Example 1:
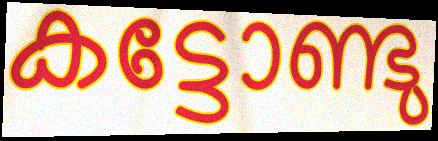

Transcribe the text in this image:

കട്ടോണ്ടു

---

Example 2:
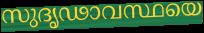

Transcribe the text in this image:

സുദൃഢാവസ്ഥയെ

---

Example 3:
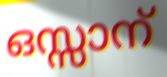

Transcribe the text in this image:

ഒസ്സാന്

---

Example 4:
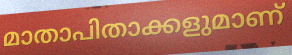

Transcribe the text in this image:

മാതാപിതാക്കളുമാണ്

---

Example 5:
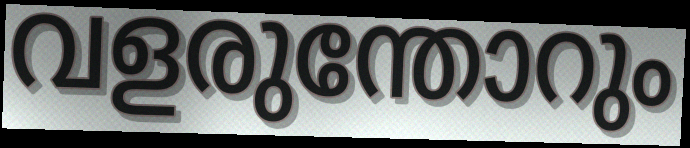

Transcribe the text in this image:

വളരുന്തോറും